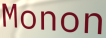
Monon